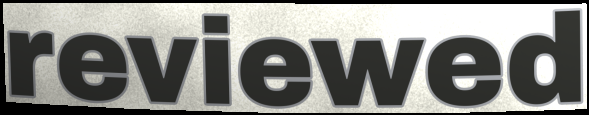
reviewed